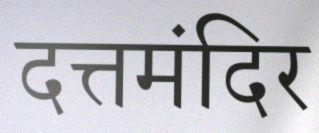
दत्तमंदिर